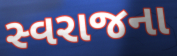
સ્વરાજના